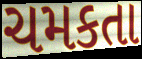
ચમકતા